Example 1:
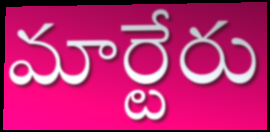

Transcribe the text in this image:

మార్టేరు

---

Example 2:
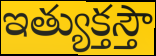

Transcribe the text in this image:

ఇత్యుక్తస్తౌ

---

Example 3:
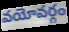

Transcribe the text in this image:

వయోవర్గం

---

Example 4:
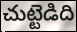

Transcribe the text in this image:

చుట్టెడిది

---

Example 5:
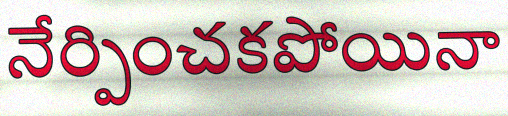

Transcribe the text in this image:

నేర్పించకపోయినా